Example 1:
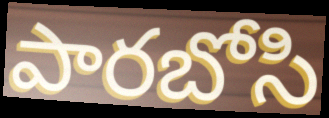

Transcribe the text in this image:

పారబోసి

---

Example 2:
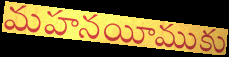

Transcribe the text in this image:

మహనయీముకు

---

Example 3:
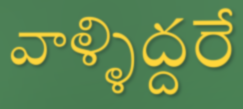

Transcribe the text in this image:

వాళ్ళిద్దరే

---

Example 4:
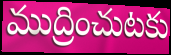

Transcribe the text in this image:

ముద్రించుటకు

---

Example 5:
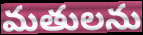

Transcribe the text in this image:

మతులను